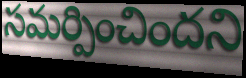
సమర్పించిందని